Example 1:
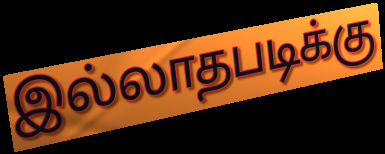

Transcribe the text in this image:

இல்லாதபடிக்கு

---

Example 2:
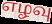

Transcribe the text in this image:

எழவு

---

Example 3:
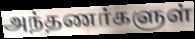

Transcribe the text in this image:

அந்தணர்களுள்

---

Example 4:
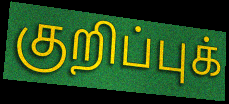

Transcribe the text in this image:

குறிப்புக்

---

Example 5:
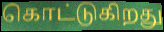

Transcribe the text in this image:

கொட்டுகிறது